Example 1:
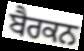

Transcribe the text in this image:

ਬੈਰਕਨ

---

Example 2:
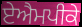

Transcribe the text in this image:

ਏਐਮਪੀਕੇ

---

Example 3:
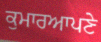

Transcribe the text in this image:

ਕੁਮਾਰਆਪਣੇ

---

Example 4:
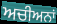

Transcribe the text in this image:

ਅਚੀਅਨਾਂ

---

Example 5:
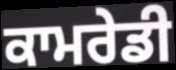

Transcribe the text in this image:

ਕਾਮਰੇਡੀ